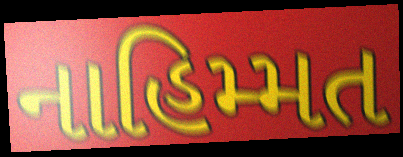
નાહિમ્મત